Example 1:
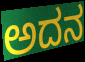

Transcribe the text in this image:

ಅದನ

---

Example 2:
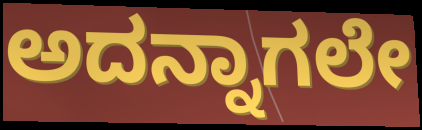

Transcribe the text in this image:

ಅದನ್ನಾಗಲೇ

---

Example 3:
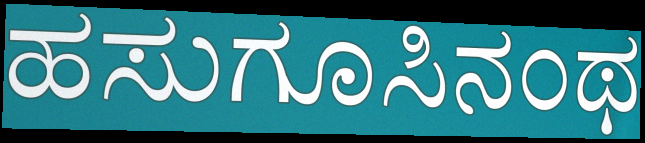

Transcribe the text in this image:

ಹಸುಗೂಸಿನಂಥ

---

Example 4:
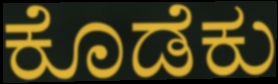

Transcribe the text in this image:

ಕೊಡೆಕು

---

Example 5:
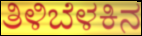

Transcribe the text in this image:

ತಿಳಿಬೆಳಕಿನ